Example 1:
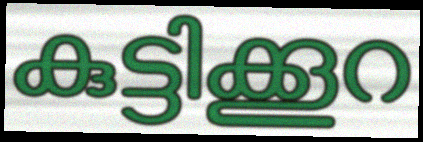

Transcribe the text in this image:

കുട്ടിക്കൂറ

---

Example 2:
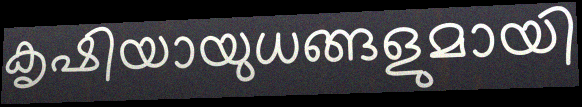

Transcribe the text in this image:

കൃഷിയായുധങ്ങളുമായി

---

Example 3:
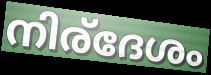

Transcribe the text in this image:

നിര്ദേശം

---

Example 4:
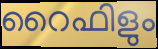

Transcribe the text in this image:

റൈഫിളും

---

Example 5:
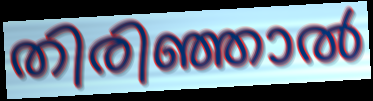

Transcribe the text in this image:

തിരിഞ്ഞാൽ